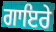
ਗਾਇਰੇ